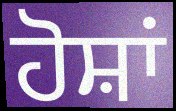
ਹੋਸ਼ਾਂ